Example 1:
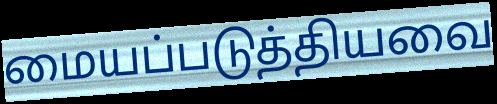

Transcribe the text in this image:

மையப்படுத்தியவை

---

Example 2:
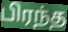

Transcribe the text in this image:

பிரந்த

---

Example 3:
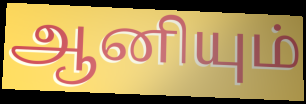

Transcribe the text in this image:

ஆனியும்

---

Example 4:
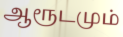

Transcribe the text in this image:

ஆரூடமும்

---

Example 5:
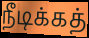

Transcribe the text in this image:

நீடிக்கத்